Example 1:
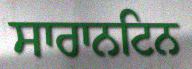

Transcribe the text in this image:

ਸਾਰਾਨਟਿਨ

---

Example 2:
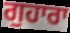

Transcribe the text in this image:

ਗੁਹਾਰਾ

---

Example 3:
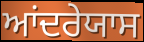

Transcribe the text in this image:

ਆਂਦਰੇਯਾਸ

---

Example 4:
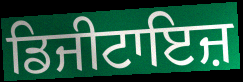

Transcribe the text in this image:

ਡਿਜੀਟਾਇਜ਼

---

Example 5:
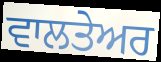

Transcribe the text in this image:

ਵਾਲਤੇਅਰ